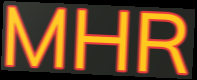
MHR